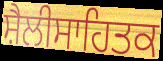
ਸ਼ੈਲੀਸਾਹਿਤਕ